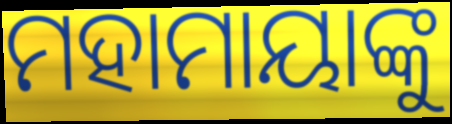
ମହାମାୟାଙ୍କୁ